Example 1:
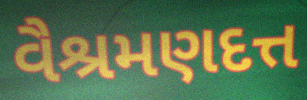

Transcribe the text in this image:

વૈશ્રમણદત્ત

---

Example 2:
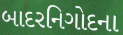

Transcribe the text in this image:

બાદરનિગોદના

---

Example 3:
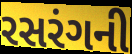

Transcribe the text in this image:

રસરંગની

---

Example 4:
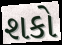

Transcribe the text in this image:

શકો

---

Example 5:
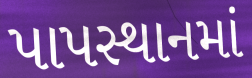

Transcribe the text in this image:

પાપસ્થાનમાં